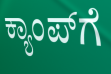
ಕ್ಯಾಂಪ್‍ಗೆ